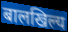
बालखिल्य